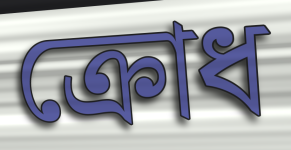
ক্রোধ